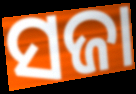
ସଜା